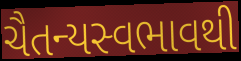
ચૈતન્યસ્વભાવથી